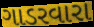
ગાડરવારા